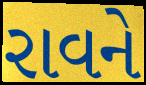
રાવને